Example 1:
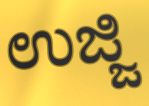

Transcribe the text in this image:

ಉಜ್ಜಿ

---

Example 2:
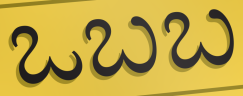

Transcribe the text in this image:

ಒಬಬ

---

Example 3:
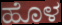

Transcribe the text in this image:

ಹೊಳ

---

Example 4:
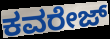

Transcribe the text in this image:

ಕವರೇಜ್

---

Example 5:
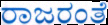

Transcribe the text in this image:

ರಾಜರಂತೆ